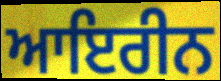
ਆਇਰੀਨ